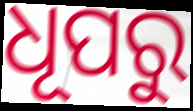
ଧୂପରୁ